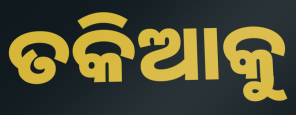
ତକିଆକୁ